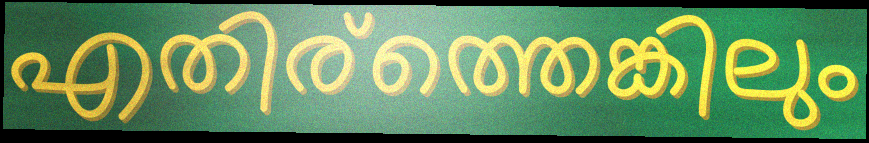
എതിര്ത്തെങ്കിലും